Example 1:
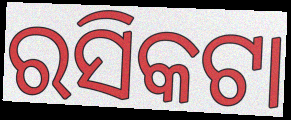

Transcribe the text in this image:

ରସିକଟା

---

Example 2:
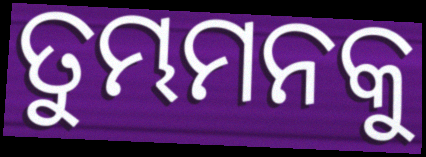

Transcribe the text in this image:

ତୁମ୍ଭମନକୁ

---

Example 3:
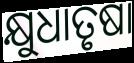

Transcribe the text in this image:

କ୍ଷୁଧାତୃଷା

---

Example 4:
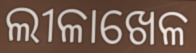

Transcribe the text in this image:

ଲୀଳାଖେଳ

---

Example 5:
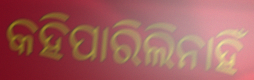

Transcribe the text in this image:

କହିପାରିଲିନାହିଁ